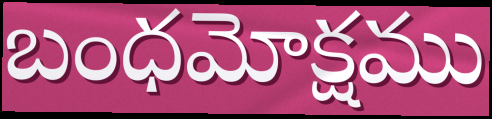
బంధమోక్షము